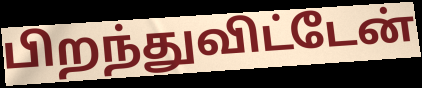
பிறந்துவிட்டேன்